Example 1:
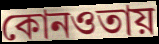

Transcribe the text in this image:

কোনওতায়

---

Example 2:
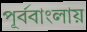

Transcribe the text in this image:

পূর্ববাংলায়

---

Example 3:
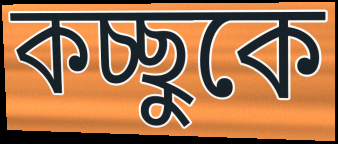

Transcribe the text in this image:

কচ্ছুকে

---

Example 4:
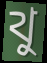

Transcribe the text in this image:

থু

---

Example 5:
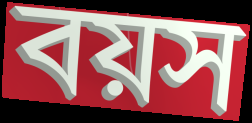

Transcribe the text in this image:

বয়স